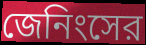
জেনিংসের